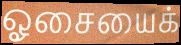
ஓசையைக்